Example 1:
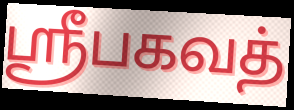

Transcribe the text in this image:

ஸ்ரீபகவத்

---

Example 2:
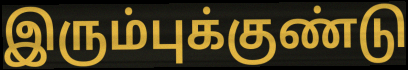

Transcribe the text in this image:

இரும்புக்குண்டு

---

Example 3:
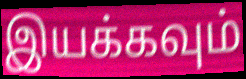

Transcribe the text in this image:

இயக்கவும்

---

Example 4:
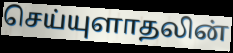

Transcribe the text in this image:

செய்யுளாதலின்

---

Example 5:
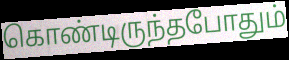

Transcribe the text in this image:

கொண்டிருந்தபோதும்